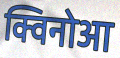
क्विनोआ